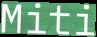
Miti